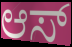
ಆಸ್